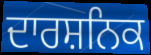
ਦਾਰਸ਼ਨਿਕ